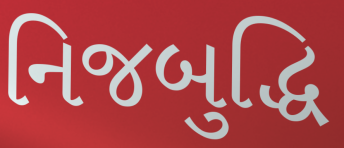
નિજબુદ્ધિ